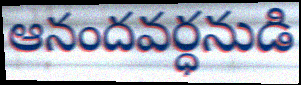
ఆనందవర్ధనుడి